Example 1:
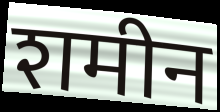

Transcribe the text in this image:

शमीन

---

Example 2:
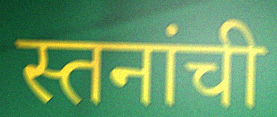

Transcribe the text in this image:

स्तनांची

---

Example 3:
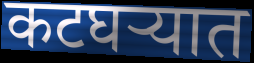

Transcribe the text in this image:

कटघऱ्यात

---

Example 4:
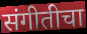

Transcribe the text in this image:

संगीतीचा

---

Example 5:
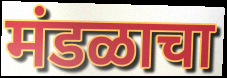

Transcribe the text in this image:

मंडळाचा